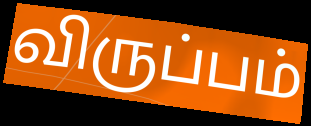
விருப்பம்